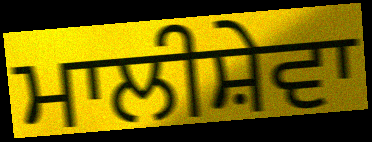
ਮਾਲੀਸ਼ੇਵਾ